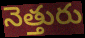
నెత్తురు